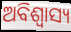
ଅବିଶ୍ୱାସ୍ୟ